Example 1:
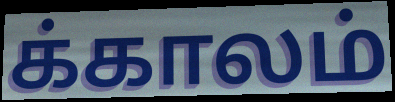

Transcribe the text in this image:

க்காலம்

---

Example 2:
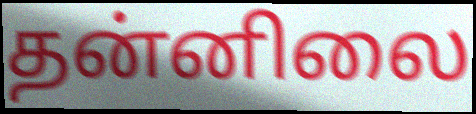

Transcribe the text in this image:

தன்னிலை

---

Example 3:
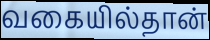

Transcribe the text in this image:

வகையில்தான்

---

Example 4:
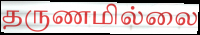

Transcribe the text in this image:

தருணமில்லை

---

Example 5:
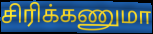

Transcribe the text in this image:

சிரிக்கணுமா